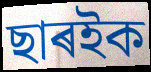
ছাৰইক